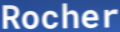
Rocher